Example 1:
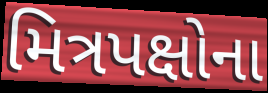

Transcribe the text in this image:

મિત્રપક્ષોના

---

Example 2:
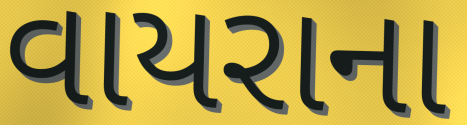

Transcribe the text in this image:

વાયરાના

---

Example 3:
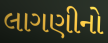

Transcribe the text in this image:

લાગણીનો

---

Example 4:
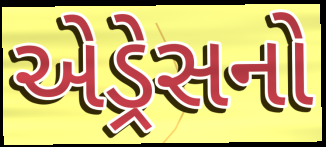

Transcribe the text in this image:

એડ્રેસનો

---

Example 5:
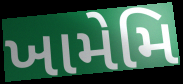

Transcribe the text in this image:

ખામેમિ